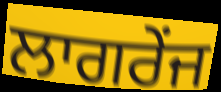
ਲਾਗਰੇਂਜ